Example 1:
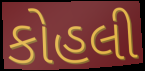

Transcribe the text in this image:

કોહલી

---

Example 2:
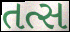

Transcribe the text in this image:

તત્સ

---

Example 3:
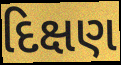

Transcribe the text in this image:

દિક્ષણ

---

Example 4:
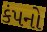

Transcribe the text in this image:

કંપનો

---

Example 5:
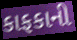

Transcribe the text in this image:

કાફકાની